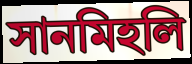
সানমিহলি